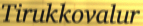
Tirukkovalur